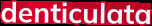
denticulata